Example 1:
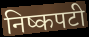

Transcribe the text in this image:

निष्कपटी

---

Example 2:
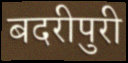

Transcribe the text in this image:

बदरीपुरी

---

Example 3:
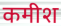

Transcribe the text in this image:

कमीश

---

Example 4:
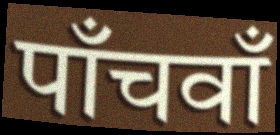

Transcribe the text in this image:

पाँचवाँ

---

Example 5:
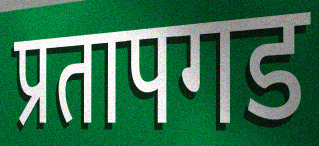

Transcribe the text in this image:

प्रतापगड